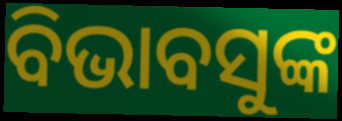
ବିଭାବସୁଙ୍କ